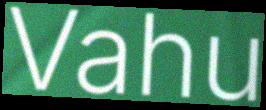
Vahu